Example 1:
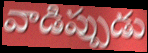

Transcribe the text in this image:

వాడిప్పుడు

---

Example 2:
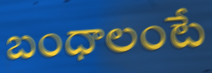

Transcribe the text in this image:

బంధాలంటే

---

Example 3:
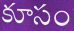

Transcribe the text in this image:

కూసం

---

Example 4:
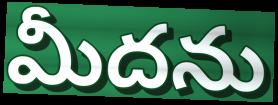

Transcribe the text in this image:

మీదను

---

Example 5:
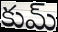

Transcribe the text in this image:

కుమ్